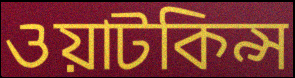
ওয়াটকিন্স